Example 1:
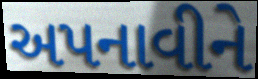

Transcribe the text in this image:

અપનાવીને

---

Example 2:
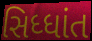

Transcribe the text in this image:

સિધ્ધાંત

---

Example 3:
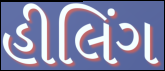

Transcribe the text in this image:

હીલિંગ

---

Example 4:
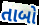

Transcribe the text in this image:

તાબો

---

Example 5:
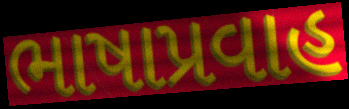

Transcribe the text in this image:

ભાષાપ્રવાહ